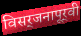
विसर्जनापूर्वी